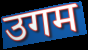
उगम